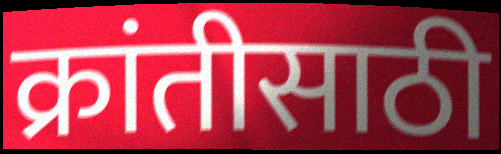
क्रांतीसाठी